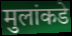
मुलांकडे